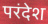
परंदेश